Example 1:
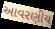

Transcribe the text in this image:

આવરણીય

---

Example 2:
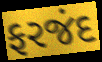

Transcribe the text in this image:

ફરજંદ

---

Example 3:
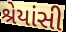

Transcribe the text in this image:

શ્રેયાંસી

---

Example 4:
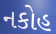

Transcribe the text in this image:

નકોહ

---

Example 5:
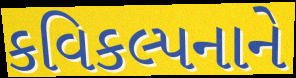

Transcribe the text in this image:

કવિકલ્પનાને